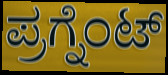
ಪ್ರಗ್ನೆಂಟ್